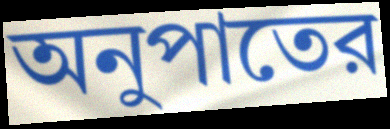
অনুপাতের